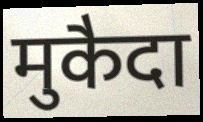
मुकैदा